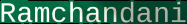
Ramchandani